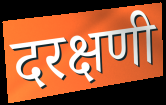
दरक्षणी